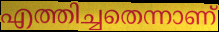
എത്തിച്ചതെന്നാണ്